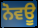
ਨੋਵਊ